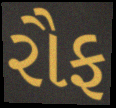
રૌફ